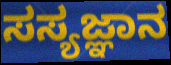
ಸಸ್ಯಜ್ಞಾನ